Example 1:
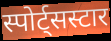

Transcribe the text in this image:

स्पोर्ट्सस्टार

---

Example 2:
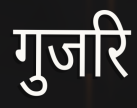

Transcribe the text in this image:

गुजरि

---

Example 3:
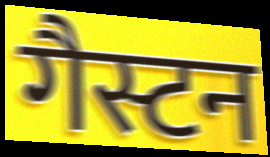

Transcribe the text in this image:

गैस्टन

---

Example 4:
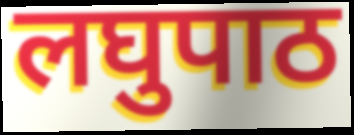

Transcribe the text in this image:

लघुपाठ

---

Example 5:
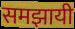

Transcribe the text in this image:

समझायी